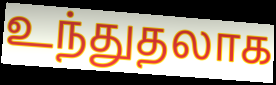
உந்துதலாக